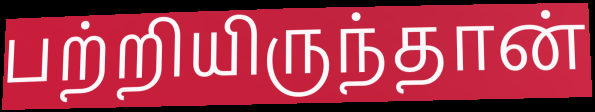
பற்றியிருந்தான்